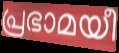
പ്രഭാമയീ